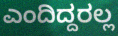
ಎಂದಿದ್ದರಲ್ಲ